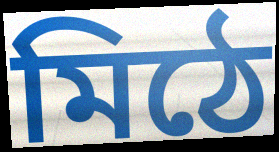
মিঠে